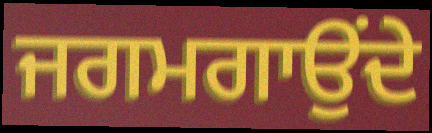
ਜਗਮਗਾਉਂਦੇ